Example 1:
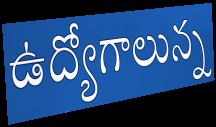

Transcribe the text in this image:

ఉద్యోగాలున్న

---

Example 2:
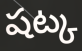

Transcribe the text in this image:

షట్క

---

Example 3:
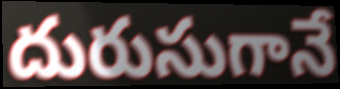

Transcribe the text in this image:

దురుసుగానే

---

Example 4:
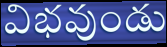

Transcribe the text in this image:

విభవుండు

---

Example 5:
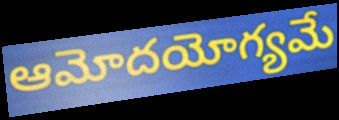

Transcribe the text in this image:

ఆమోదయోగ్యమే